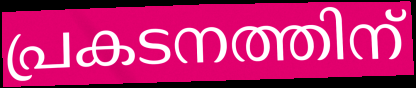
പ്രകടനത്തിന്